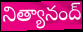
నిత్యానంద్